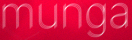
munga